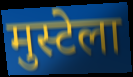
मुस्टेला